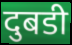
दुबडी